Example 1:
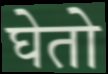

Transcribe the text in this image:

घेतो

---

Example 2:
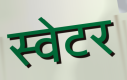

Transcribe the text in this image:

स्वेटर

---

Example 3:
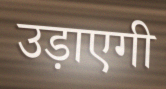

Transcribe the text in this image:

उड़ाएगी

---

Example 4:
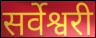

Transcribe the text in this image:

सर्वेश्वरी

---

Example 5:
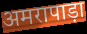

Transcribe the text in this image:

अमरापाड़ा